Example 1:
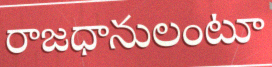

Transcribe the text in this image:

రాజధానులంటూ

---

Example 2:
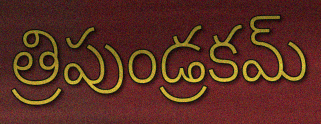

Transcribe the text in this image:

త్రిపుండ్రకమ్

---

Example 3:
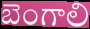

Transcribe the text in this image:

బెంగాలి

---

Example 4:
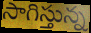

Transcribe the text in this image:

సాగిస్తున్న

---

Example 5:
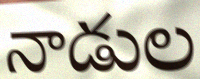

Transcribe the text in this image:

నాడుల